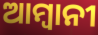
ଆମ୍ବାନୀ